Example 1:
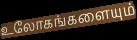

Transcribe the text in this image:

உலோகங்களையும்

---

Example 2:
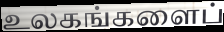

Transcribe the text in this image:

உலகங்களைப்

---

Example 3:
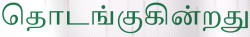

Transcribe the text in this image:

தொடங்குகின்றது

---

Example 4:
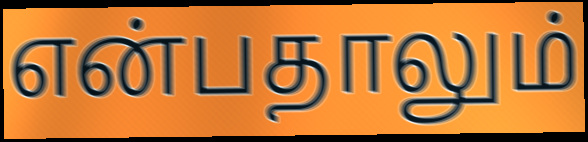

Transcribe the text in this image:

என்பதாலும்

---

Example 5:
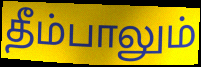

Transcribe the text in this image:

தீம்பாலும்